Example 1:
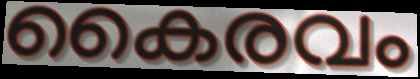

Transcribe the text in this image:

കൈരവം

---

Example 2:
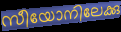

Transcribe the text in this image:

സീയോനിലേക്കു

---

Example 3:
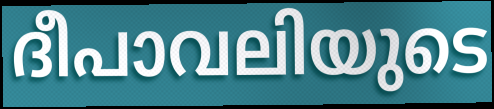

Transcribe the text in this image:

ദീപാവലിയുടെ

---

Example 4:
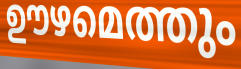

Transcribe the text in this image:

ഊഴമെത്തും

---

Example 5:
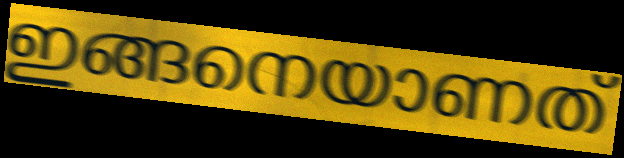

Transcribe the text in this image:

ഇങ്ങനെയാണത്